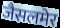
जैसलमेर